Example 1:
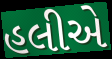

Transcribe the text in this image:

હલીએ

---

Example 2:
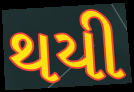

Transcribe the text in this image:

થયી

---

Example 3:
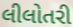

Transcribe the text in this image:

લીલોતરી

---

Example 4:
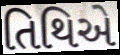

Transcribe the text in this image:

તિથિએ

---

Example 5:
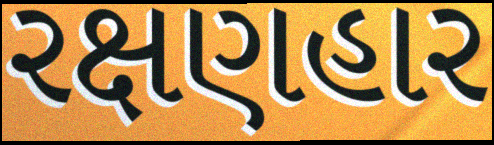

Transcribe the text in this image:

રક્ષણહાર